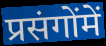
प्रसंगोंमें